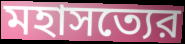
মহাসত্যের